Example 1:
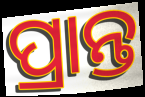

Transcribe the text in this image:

ପ୍ରାନ୍ତ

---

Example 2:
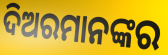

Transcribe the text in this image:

ଦିଅରମାନଙ୍କର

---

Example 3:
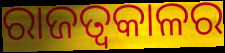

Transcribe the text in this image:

ରାଜତ୍ୱକାଳର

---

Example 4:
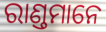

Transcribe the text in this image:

ରାଣ୍ଡମାନେ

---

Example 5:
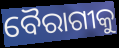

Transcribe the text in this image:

ବୈରାଗୀକୁ